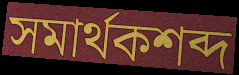
সমার্থকশব্দ